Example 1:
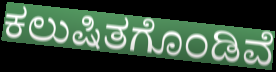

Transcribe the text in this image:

ಕಲುಷಿತಗೊಂಡಿವೆ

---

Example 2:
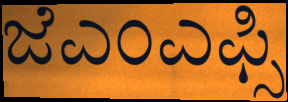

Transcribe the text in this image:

ಜೆಎಂಎಫ್ಸಿ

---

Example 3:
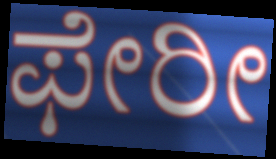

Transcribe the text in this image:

ಫೇರೀ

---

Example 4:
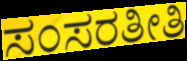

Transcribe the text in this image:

ಸಂಸರತೀತಿ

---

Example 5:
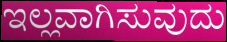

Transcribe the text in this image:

ಇಲ್ಲವಾಗಿಸುವುದು